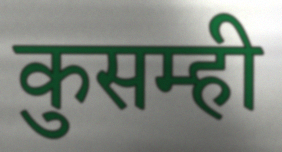
कुसम्ही